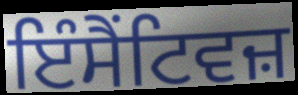
ਇੰਸੈਂਟਿਵਜ਼